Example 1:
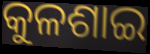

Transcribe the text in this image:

କୁଳଶାଇ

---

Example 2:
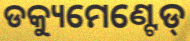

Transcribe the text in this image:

ଡକ୍ୟୁମେଣ୍ଟେଡ୍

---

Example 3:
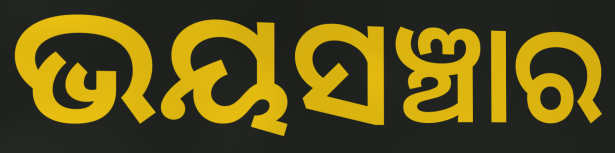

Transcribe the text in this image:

ଭୟସଞ୍ଚାର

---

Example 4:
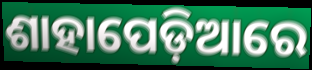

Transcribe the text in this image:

ଶାହାପେଡ଼ିଆରେ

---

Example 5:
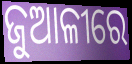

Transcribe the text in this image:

ଜୁଆଳୀରେ